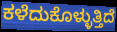
ಕಳೆದುಕೊಳ್ಳುತ್ತಿದೆ